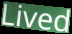
Lived